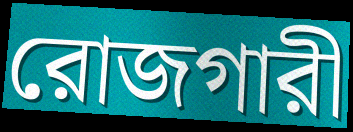
রোজগারী